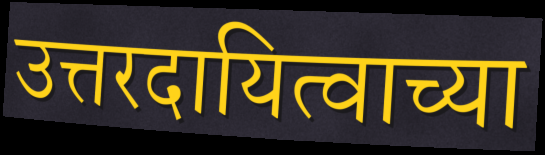
उत्तरदायित्वाच्या